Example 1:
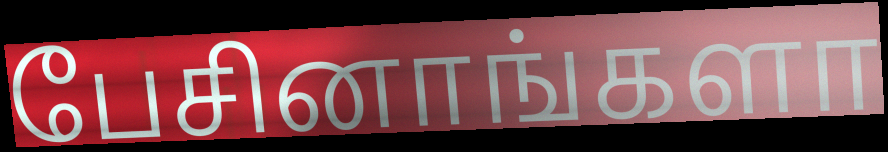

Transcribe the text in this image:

பேசினாங்களா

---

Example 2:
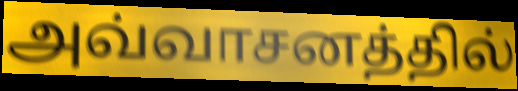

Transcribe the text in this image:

அவ்வாசனத்தில்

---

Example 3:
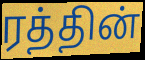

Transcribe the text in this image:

ரத்தின்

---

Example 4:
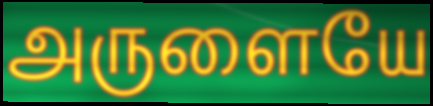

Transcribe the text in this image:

அருளையே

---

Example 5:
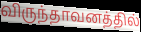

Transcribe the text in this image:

விருந்தாவனத்தில்